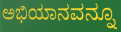
ಅಭಿಯಾನವನ್ನೂ